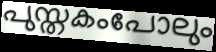
പുസ്തകംപോലും